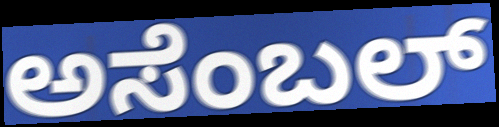
ಅಸೆಂಬಲ್